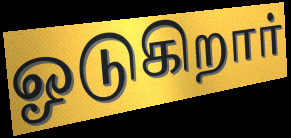
ஓடுகிறார்